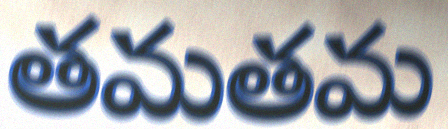
తమతమ